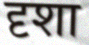
दृशा